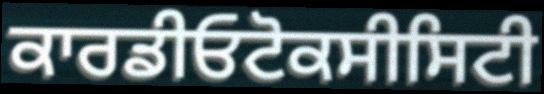
ਕਾਰਡੀਓਟੋਕਸੀਸਿਟੀ